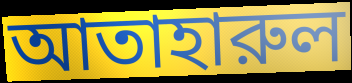
আতাহারুল